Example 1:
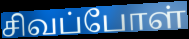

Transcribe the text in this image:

சிவப்போள்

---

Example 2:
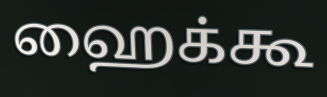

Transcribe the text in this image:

ஹைக்கூ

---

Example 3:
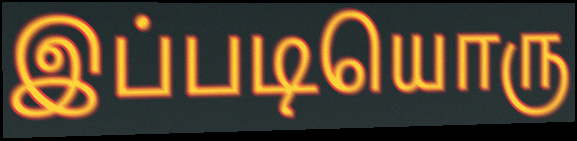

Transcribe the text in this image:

இப்படியொரு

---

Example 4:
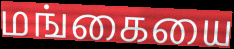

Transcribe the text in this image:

மங்கையை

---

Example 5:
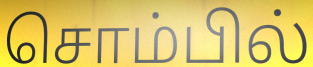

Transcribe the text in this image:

சொம்பில்